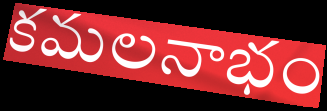
కమలనాభం